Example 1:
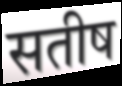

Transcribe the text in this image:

सतीष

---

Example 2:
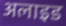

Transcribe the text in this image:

अलाइड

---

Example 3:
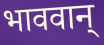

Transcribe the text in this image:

भाववान्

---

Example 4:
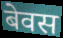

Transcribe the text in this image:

बेवस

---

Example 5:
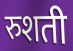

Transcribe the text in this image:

रुशती